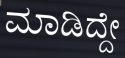
ಮಾಡಿದ್ದೇ